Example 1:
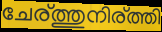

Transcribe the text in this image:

ചേര്ത്തുനിര്ത്തി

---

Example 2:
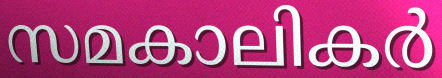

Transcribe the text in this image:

സമകാലികർ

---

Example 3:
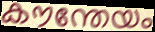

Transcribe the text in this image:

കൗന്തേയം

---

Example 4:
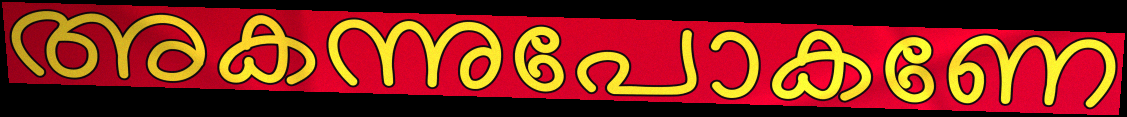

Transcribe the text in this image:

അകന്നുപോകണേ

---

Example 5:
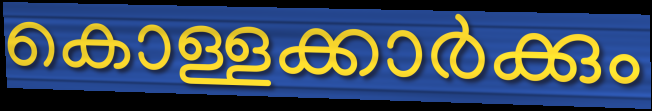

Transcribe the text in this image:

കൊള്ളക്കാർക്കും